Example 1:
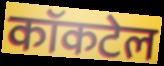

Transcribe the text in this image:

कॉकटेल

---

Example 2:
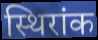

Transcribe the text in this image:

स्थिरांक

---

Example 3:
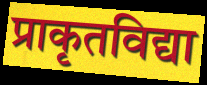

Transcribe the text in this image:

प्राकृतविद्या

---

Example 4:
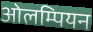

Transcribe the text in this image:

ओलम्पियन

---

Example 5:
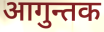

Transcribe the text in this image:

आगुन्तक